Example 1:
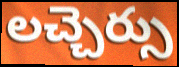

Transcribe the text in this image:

లచ్చెర్సు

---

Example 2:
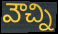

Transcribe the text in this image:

వౌచ్ని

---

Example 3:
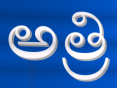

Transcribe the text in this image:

అత్రి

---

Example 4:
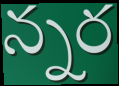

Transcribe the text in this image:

న్నర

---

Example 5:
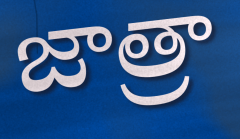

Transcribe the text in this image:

జాత్రా